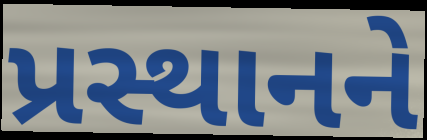
પ્રસ્થાનને